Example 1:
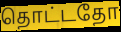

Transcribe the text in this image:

தொட்டதோ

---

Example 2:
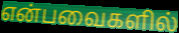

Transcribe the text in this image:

என்பவைகளில்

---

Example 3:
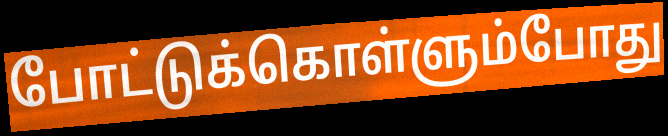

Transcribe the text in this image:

போட்டுக்கொள்ளும்போது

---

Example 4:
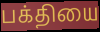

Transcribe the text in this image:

பக்தியை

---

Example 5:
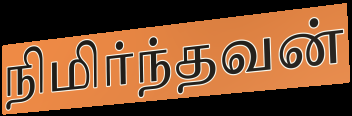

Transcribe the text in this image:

நிமிர்ந்தவன்